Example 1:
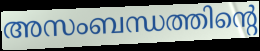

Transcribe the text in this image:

അസംബന്ധത്തിന്റെ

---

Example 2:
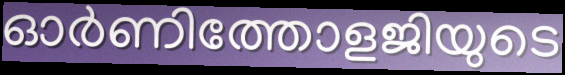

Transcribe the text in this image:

ഓർണിത്തോളജിയുടെ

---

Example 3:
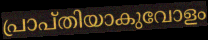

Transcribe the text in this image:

പ്രാപ്തിയാകുവോളം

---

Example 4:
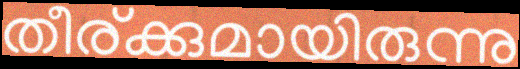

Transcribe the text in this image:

തീര്ക്കുമായിരുന്നു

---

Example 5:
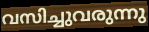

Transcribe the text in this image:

വസിച്ചുവരുന്നു